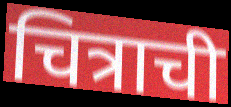
चित्राची